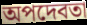
অপদেবতা